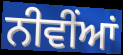
ਨੀਵੀਂਆਂ